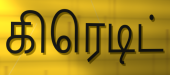
கிரெடிட்